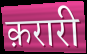
क़रारी